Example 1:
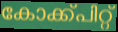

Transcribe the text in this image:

കോക്ക്പിറ്റ്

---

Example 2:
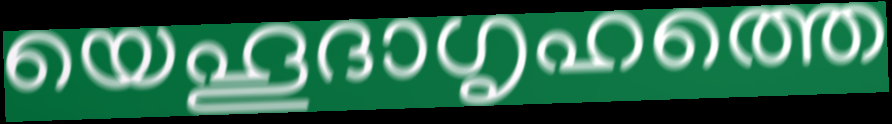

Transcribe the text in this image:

യെഹൂദാഗൃഹത്തെ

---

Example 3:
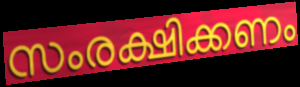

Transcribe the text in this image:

സംരക്ഷിക്കണം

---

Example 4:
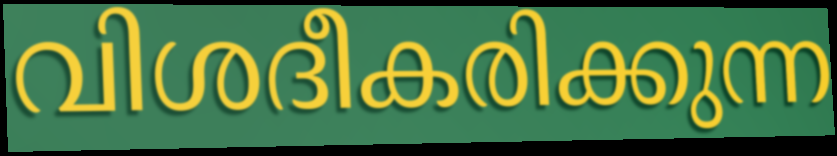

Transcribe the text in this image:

വിശദീകരിക്കുന്ന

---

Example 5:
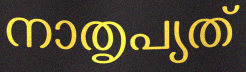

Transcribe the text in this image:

നാതൃപ്യത്